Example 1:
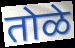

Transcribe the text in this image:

तोळे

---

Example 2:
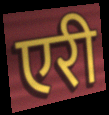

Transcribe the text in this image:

एरी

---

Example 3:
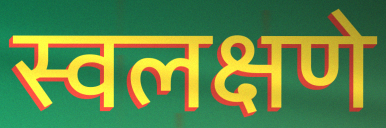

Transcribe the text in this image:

स्वलक्षणे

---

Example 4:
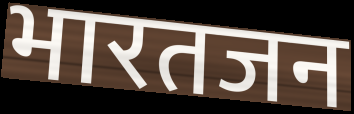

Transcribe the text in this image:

भारतजन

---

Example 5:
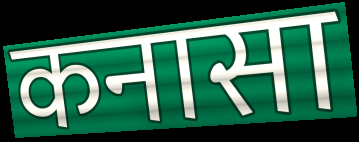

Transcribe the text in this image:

कनासा